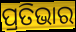
ପ୍ରତିଭାର